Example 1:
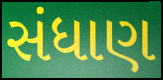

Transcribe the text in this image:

સંધાણ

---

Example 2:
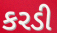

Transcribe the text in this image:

કરડી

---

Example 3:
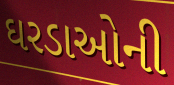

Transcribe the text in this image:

ઘરડાઓની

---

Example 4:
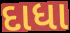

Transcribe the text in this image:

દાધા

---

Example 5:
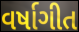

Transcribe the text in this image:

વર્ષાગીત